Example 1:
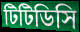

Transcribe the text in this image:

টিটিডিসি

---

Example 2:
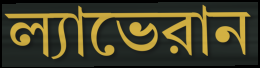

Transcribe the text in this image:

ল্যাভেরান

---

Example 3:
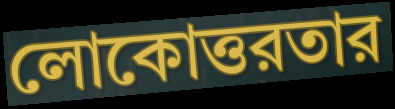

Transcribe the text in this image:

লোকোত্তরতার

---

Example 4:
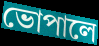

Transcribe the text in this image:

ভোপালে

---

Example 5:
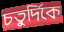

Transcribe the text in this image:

চতুর্দিকে